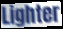
Lighter